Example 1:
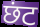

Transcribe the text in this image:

छंट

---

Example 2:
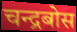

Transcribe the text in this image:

चन्द्रबोस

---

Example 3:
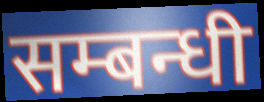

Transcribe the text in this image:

सम्बन्धी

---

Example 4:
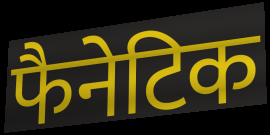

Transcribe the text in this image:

फैनेटिक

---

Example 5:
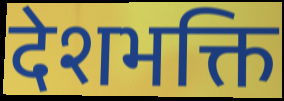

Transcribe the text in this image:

देशभक्ति